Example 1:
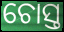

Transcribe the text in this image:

ଚୋସ୍ତ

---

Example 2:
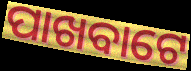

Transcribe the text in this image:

ପାଖବାଟେ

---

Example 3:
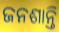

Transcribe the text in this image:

ଜନଶାନ୍ତି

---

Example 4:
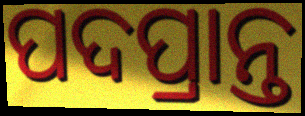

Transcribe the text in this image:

ପଦପ୍ରାନ୍ତ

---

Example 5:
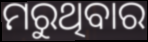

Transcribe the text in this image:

ମରୁଥିବାର